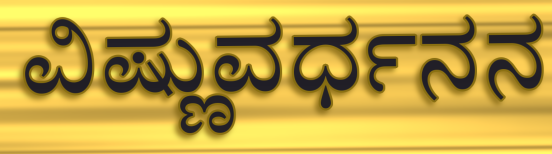
ವಿಷ್ಣುವರ್ಧನನ